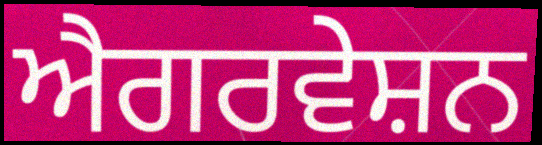
ਐਗਰਵੇਸ਼ਨ